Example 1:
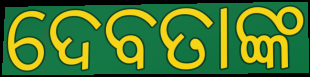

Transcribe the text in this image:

ଦେବତାଙ୍କ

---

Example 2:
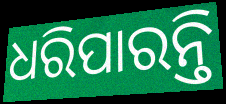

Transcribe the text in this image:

ଧରିପାରନ୍ତି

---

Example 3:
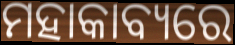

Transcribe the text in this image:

ମହାକାବ୍ୟରେ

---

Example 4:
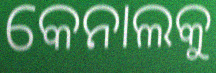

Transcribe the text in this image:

କେନାଲକୁ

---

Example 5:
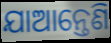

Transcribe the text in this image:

ଯାଆନ୍ତେଣି